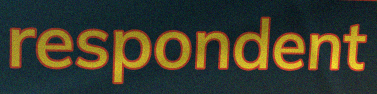
respondent